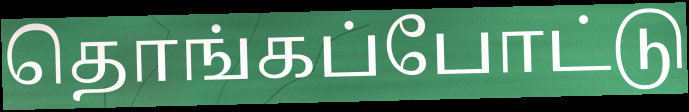
தொங்கப்போட்டு